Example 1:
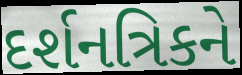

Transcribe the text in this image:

દર્શનત્રિકને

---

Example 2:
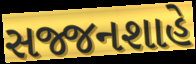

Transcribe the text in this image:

સજ્જનશાહે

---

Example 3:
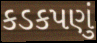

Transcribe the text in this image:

કડકપણું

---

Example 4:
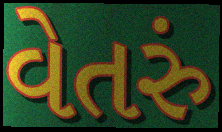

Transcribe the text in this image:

વેતરું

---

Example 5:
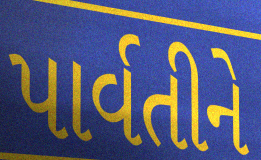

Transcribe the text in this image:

પાર્વતીને